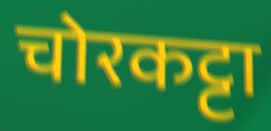
चोरकट्टा